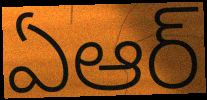
ఏఆర్